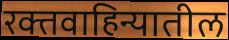
रक्तवाहिन्यातील